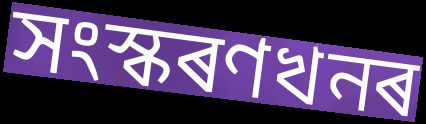
সংস্কৰণখনৰ